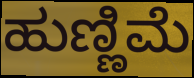
ಹುಣ್ಣಿಮೆ